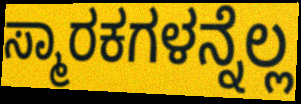
ಸ್ಮಾರಕಗಳನ್ನೆಲ್ಲ